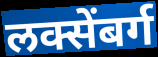
लक्सेंबर्ग